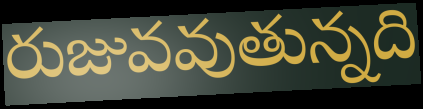
రుజువవుతున్నది